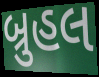
બ્રુહલ